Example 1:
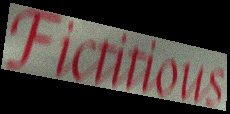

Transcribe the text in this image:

Fictitious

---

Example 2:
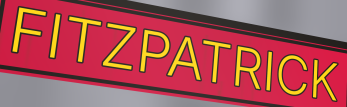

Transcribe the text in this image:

FITZPATRICK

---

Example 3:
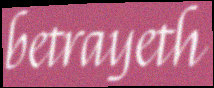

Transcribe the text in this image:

betrayeth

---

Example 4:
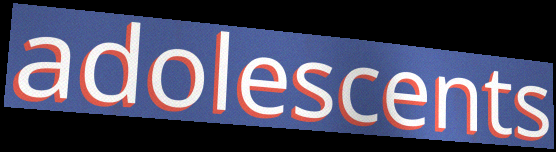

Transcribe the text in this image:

adolescents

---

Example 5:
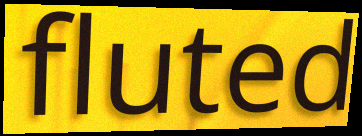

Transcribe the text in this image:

fluted